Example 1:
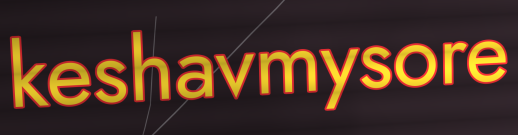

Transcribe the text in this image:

keshavmysore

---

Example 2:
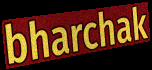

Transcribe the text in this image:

bharchak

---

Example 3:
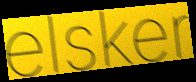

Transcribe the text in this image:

elsker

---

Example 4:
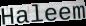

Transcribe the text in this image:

Haleem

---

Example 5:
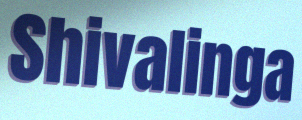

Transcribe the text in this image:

Shivalinga